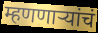
म्हणणाऱ्यांचं